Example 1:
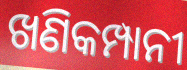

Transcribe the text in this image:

ଖଣିକମ୍ପାନୀ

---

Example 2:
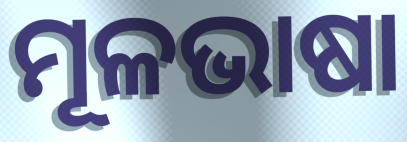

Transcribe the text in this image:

ମୂଳଭାଷା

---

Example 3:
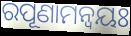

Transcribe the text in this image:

ରପୂଣାମନ୍ଵୟଃ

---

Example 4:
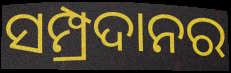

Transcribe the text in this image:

ସମ୍ପ୍ରଦାନର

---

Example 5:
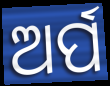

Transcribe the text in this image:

ଅର୍ପ